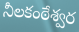
నీలకంఠేశ్వర